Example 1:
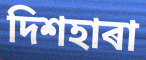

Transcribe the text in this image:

দিশহাৰা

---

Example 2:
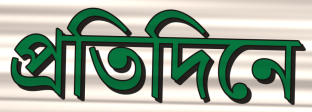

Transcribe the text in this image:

প্ৰতিদিনে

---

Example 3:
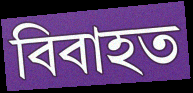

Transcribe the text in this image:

বিবাহত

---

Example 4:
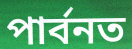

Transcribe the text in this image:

পাৰ্বনত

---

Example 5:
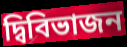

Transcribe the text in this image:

দ্বিবিভাজন